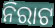
ନିରାଟ